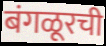
बंगळूरची